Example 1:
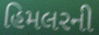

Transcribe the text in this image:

હિમલરની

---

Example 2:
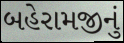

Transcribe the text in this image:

બહેરામજીનું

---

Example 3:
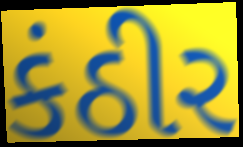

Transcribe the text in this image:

કંઠીર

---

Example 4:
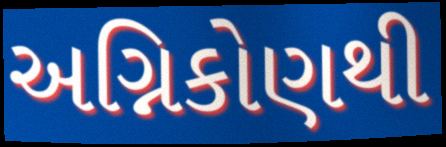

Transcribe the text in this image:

અગ્નિકોણથી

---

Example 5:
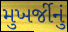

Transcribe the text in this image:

મુખર્જીનું